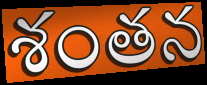
శంతన